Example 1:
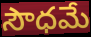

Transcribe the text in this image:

సౌధమే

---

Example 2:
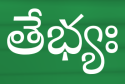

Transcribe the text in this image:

తేభ్యః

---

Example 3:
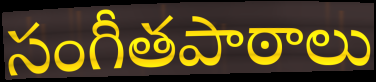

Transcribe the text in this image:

సంగీతపాఠాలు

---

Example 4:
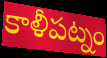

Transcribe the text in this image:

కాళీపట్నం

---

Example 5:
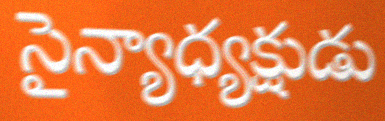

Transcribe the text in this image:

సైన్యాధ్యక్షుడు